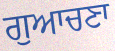
ਗੁਆਚਣਾ